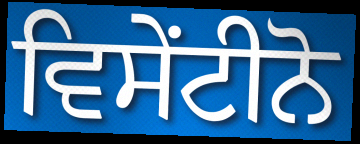
ਵਿਸੇਂਟੀਨੋ